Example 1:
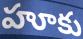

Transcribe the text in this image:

హూకు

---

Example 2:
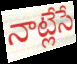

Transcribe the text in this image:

నాట్లేసే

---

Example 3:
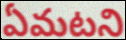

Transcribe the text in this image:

ఏమటని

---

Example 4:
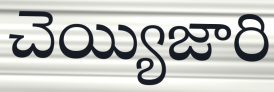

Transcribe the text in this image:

చెయ్యిజారి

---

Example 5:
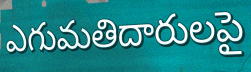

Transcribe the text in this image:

ఎగుమతిదారులపై